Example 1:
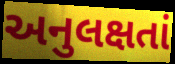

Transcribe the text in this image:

અનુલક્ષતાં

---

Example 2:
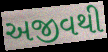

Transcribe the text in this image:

અજીવથી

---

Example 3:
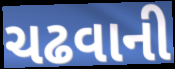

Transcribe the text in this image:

ચઢવાની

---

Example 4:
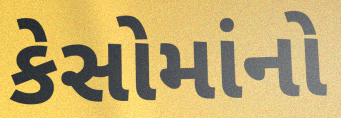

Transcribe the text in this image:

કેસોમાંનો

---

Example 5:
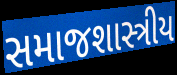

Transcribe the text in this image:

સમાજશાસ્ત્રીય